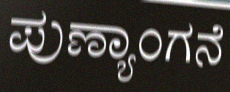
ಪುಣ್ಯಾಂಗನೆ